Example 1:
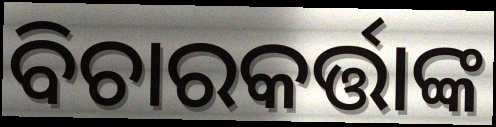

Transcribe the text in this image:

ବିଚାରକର୍ତ୍ତାଙ୍କ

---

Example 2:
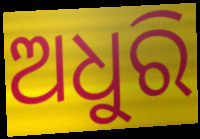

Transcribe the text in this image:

ଅଧୁରି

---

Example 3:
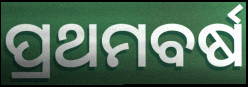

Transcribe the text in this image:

ପ୍ରଥମବର୍ଷ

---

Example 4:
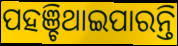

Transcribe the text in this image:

ପହଞ୍ଚିଥାଇପାରନ୍ତି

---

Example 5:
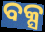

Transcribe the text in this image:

ବକ୍ସ